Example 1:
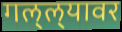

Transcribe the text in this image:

गल्ल्यावर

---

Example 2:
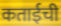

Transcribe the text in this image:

कताईची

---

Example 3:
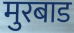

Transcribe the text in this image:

मुरबाड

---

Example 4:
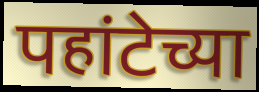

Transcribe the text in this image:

पहांटेच्या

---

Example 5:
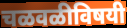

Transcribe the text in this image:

चळवळीविषयी